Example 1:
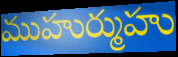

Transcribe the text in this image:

ముహుర్ముహు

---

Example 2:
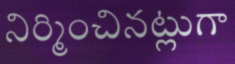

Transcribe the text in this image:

నిర్మించినట్లుగా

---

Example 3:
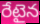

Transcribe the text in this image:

రేటైన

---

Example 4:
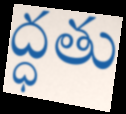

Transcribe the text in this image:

ద్ధతు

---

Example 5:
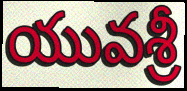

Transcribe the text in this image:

యువశ్రీ